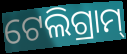
ଟେଲିଗ୍ରାମ୍